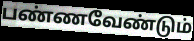
பண்ணவேண்டும்